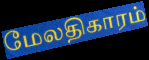
மேலதிகாரம்